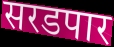
सरडपार